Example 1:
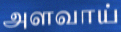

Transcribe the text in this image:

அளவாய்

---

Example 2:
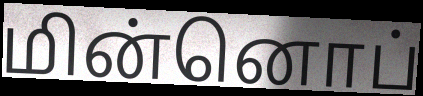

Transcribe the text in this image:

மின்னொப்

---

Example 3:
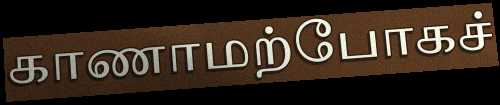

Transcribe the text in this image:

காணாமற்போகச்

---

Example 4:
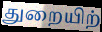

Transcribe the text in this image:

துறையிற்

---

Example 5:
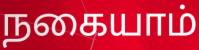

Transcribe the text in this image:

நகையாம்